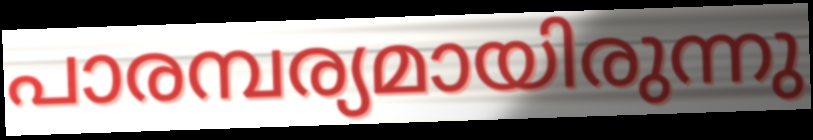
പാരമ്പര്യമായിരുന്നു